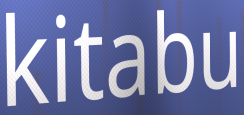
kitabu